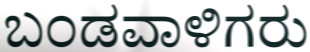
ಬಂಡವಾಳಿಗರು